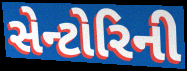
સેન્ટોરિની